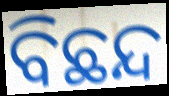
ବିଛନ୍ଦ